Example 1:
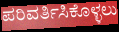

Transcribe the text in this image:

ಪರಿವರ್ತಿಸಿಕೊಳ್ಳಲು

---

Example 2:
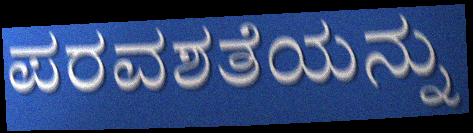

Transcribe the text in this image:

ಪರವಶತೆಯನ್ನು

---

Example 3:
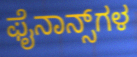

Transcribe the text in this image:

ಫೈನಾನ್ಸ್‌ಗಳ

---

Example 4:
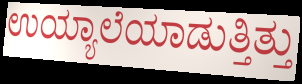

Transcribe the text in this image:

ಉಯ್ಯಾಲೆಯಾಡುತ್ತಿತ್ತು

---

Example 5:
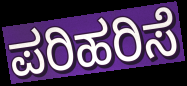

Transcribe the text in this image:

ಪರಿಹರಿಸೆ